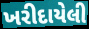
ખરીદાયેલી